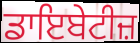
ਡਾਇਬੇਟੀਜ਼